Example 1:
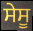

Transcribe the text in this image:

ਸੇਸੂ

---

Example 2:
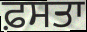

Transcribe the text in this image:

ਫ਼ਸਤਾ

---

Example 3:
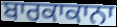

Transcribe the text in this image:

ਬਾਰਕਾਕਾਨਾ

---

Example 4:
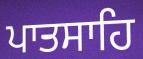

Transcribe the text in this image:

ਪਾਤਸਾਹਿ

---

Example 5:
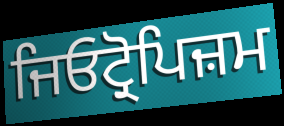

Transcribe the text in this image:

ਜਿਓਟ੍ਰੋਪਿਜ਼ਮ